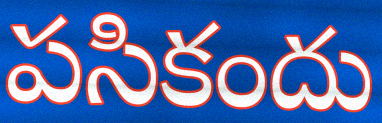
పసికందు